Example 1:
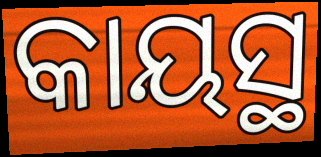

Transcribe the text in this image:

କାୟସ୍ଥ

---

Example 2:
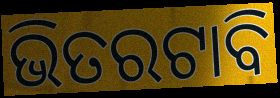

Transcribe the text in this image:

ଭିତରଟାବି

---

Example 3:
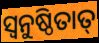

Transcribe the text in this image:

ସ୍ଵନୁଷ୍ଠିତାତ୍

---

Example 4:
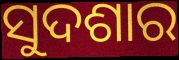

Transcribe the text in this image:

ସୁଦଶାର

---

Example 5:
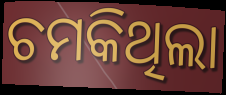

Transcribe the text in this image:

ଚମକିଥିଲା